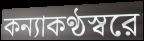
কন্যাকণ্ঠস্বরে